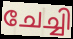
ചേച്ചി